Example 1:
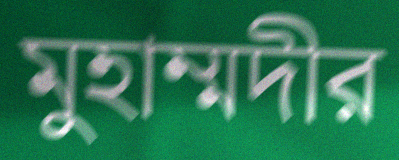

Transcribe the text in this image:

মুহাম্মদীর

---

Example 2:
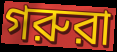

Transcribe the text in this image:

গরুরা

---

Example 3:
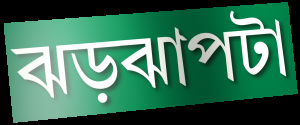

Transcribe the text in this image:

ঝড়ঝাপটা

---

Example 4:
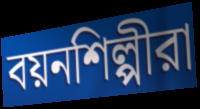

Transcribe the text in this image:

বয়নশিল্পীরা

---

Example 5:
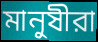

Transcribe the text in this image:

মানুষীরা